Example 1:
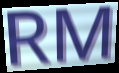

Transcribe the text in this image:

RM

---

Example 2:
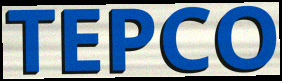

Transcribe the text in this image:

TEPCO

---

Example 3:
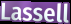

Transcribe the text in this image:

Lassell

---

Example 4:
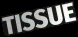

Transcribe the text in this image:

TISSUE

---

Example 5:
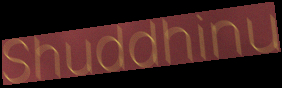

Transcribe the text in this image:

Shuddhinu